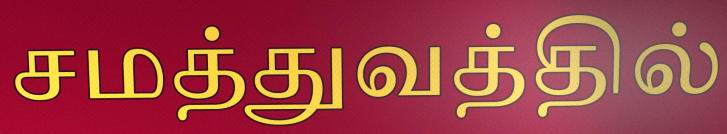
சமத்துவத்தில்